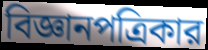
বিজ্ঞানপত্রিকার